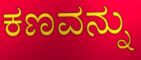
ಕಣವನ್ನು